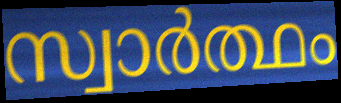
സ്വാർത്ഥം